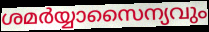
ശമർയ്യാസൈന്യവും